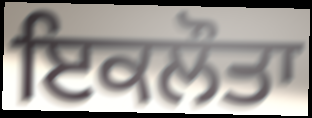
ਇਕਲੌਤਾ